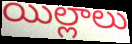
యిల్లాలు